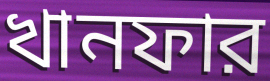
খানফার